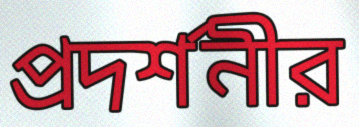
প্রদর্শনীর